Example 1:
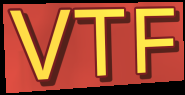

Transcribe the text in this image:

VTF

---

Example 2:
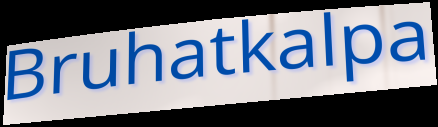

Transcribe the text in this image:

Bruhatkalpa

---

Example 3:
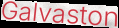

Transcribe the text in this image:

Galvaston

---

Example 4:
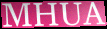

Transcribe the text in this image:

MHUA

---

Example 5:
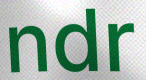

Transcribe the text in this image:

ndr